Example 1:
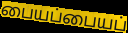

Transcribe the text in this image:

பையப்பையப்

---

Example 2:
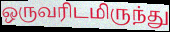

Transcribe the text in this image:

ஒருவரிடமிருந்து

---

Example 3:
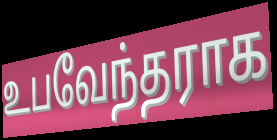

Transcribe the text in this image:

உபவேந்தராக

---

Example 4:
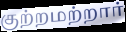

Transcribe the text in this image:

குற்றமற்றார்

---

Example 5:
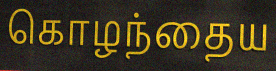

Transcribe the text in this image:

கொழந்தைய